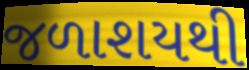
જળાશયથી